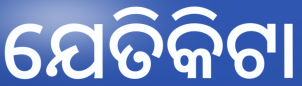
ଯେତିକିଟା